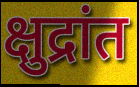
क्षुद्रांत